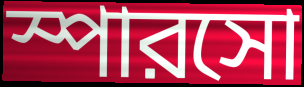
স্পারসো